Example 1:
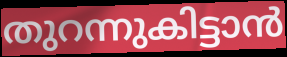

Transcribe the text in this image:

തുറന്നുകിട്ടാൻ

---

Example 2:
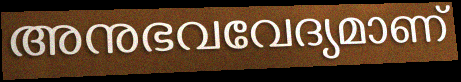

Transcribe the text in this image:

അനുഭവവേദ്യമാണ്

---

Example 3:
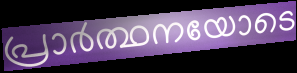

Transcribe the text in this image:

പ്രാർത്ഥനയോടെ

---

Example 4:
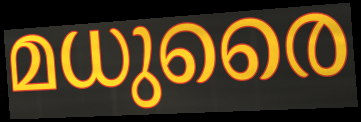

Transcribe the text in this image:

മധുരൈ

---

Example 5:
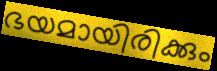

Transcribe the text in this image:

ഭയമായിരിക്കും